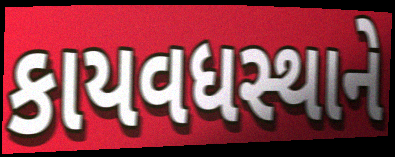
કાયવધસ્થાને